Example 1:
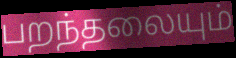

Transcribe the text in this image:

பறந்தலையும்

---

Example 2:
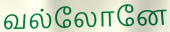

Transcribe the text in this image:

வல்லோனே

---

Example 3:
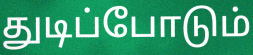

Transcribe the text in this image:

துடிப்போடும்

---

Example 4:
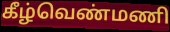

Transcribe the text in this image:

கீழ்வெண்மணி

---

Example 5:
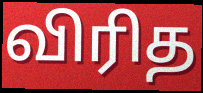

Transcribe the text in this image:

விரித